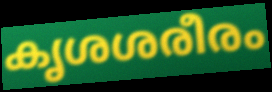
കൃശശരീരം